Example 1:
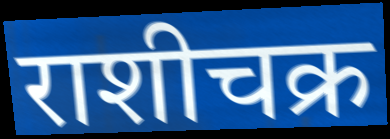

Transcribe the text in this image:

राशीचक्र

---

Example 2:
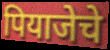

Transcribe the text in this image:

पियाजेचे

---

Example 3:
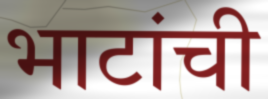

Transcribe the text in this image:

भाटांची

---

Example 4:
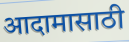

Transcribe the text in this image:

आदामासाठी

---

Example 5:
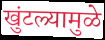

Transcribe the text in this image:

खुंटल्यामुळे